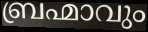
ബ്രഹ്മാവും